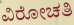
ವಿರೋಚತಿ